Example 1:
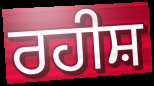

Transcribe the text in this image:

ਰਹੀਸ਼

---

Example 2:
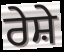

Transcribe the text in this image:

ਰੇਸ਼ੇ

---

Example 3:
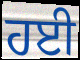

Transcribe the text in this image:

ਹਈ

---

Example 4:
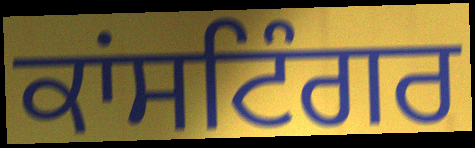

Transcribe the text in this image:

ਕਾਂਸਟਿੰਗਰ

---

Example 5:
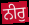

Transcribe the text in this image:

ਨੀਰੁ